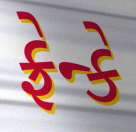
ફ્રેન્કે